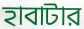
হাবাটার